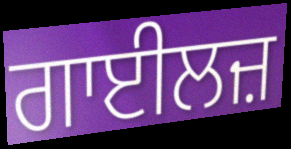
ਗਾਈਲਜ਼